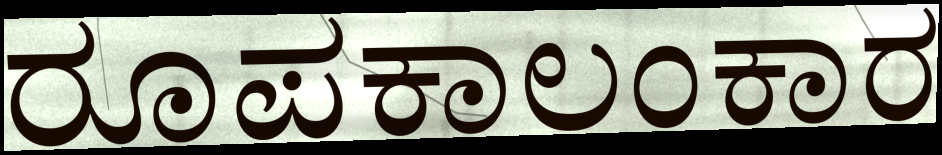
ರೂಪಕಾಲಂಕಾರ